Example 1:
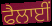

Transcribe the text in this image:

ਫੈਲਾਈਂ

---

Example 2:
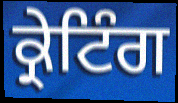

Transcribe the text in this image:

ਕ੍ਰੇਟਿੰਗ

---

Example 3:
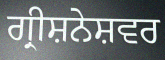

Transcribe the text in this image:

ਗ੍ਰੀਸ਼ਨੇਸ਼ਵਰ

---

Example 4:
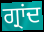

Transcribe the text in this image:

ਗ੍ਰਾਂਦ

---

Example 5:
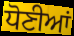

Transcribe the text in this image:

ਧੋਣੀਆਂ